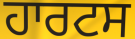
ਹਾਰਟਸ